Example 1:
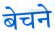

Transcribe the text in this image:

बेचने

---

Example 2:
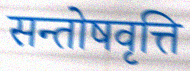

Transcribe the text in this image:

सन्तोषवृत्ति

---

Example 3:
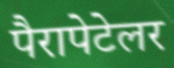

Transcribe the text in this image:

पैरापेटेलर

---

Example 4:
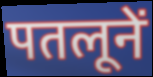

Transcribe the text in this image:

पतलूनें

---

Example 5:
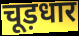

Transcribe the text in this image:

चूड़धार